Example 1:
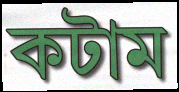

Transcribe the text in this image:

কটাম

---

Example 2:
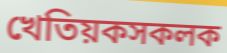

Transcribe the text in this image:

খেতিয়কসকলক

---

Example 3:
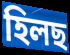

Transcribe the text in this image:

হিলছ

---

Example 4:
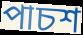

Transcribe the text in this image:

পাচশ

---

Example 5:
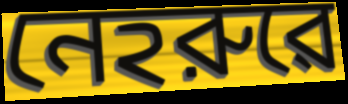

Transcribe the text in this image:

নেহৰুৱে